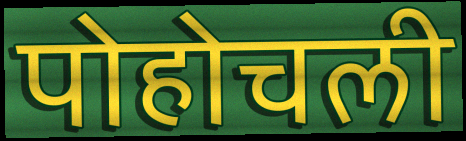
पोहोचली